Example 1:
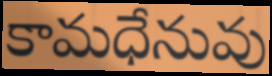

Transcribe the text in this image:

కామధేనువు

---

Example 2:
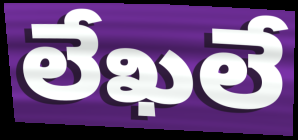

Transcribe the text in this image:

లేఖలే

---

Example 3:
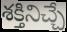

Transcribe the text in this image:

శక్తినిచ్చే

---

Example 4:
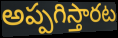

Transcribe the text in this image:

అప్పగిస్తారట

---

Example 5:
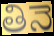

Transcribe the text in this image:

తినె